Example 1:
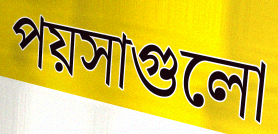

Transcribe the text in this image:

পয়সাগুলো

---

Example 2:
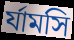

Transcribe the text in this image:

র্যামসি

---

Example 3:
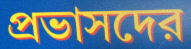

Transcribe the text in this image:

প্রভাসদের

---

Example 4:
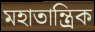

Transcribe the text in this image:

মহাতান্ত্রিক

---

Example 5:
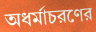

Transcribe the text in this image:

অধর্মাচরণের